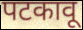
पटकावू